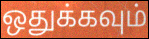
ஒதுக்கவும்